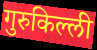
गुरुकिल्ली